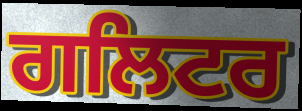
ਗਲਿਟਰ